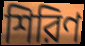
শিরিণ